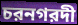
চরনগরদী